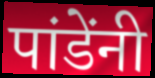
पांडेंनी